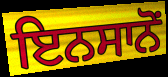
ਇਨਸਾਨੋਂ